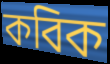
কবিক